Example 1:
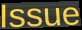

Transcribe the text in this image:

Issue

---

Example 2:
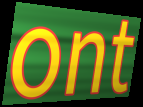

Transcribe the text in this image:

ont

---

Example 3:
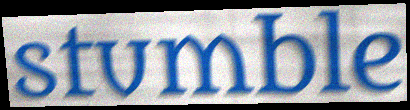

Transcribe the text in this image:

stumble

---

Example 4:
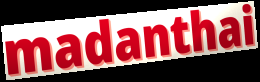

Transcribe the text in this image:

madanthai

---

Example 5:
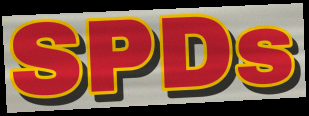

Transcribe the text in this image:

SPDs